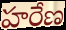
హరేణ